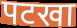
पटखा